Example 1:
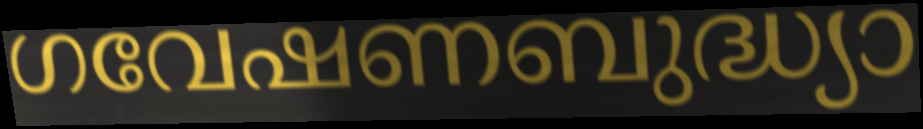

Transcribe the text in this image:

ഗവേഷണബുദ്ധ്യാ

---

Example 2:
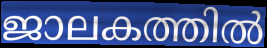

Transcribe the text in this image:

ജാലകത്തിൽ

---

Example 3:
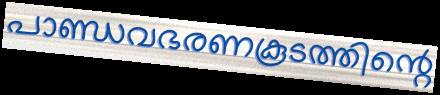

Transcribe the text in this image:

പാണ്ഡവഭരണകൂടത്തിന്റെ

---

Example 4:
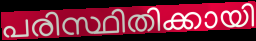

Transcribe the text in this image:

പരിസ്ഥിതിക്കായി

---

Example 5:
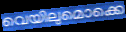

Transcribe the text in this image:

വെയിലുമൊക്കെ